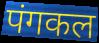
पंगकल